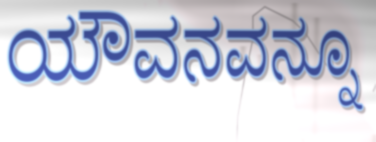
ಯೌವನವನ್ನೂ